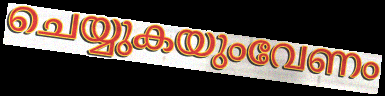
ചെയ്യുകയുംവേണം